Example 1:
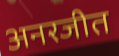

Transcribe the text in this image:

अनरजीत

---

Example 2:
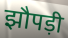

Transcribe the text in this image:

झौपड़ी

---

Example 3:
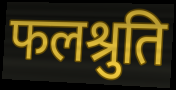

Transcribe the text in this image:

फलश्रुति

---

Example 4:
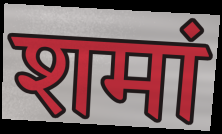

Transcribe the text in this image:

शमां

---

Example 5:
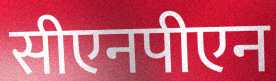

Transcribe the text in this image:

सीएनपीएन